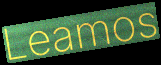
Leamos